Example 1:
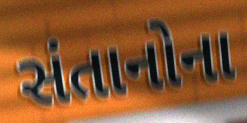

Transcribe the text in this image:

સંતાનોના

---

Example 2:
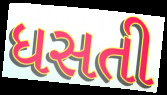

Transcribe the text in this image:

ધસતી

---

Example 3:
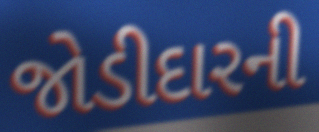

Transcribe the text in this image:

જોડીદારની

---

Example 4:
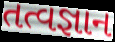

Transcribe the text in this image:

તત્વજ્ઞાન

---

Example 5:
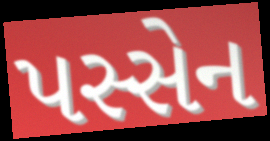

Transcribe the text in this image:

પસ્સેન